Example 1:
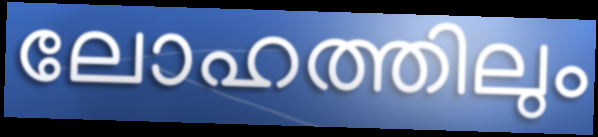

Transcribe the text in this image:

ലോഹത്തിലും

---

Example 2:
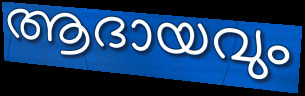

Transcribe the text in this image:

ആദായവും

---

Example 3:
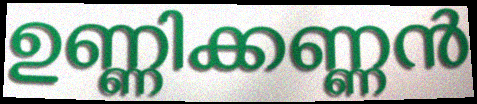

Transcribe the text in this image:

ഉണ്ണിക്കണ്ണൻ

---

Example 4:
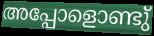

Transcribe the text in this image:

അപ്പോളൊണ്ടു്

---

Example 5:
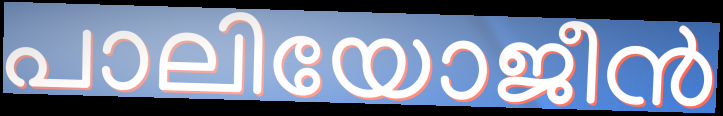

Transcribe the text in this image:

പാലിയോജീൻ